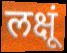
लक्षूं